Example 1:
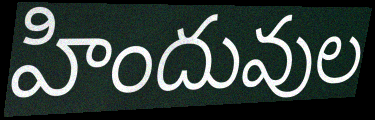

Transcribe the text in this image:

హిందువుల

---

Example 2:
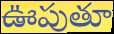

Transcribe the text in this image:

ఊపుతూ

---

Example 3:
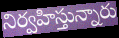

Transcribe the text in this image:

నిర్వహిస్తున్నారు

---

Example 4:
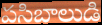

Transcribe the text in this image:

పసిబాలుడి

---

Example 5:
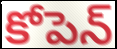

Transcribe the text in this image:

కోపెన్